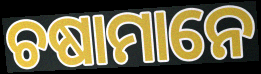
ଚଷାମାନେ